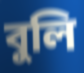
বুলি